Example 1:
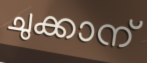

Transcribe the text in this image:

ചുക്കാന്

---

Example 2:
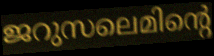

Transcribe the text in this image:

ജറുസലെമിന്റെ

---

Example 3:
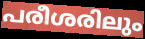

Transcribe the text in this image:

പരീശരിലും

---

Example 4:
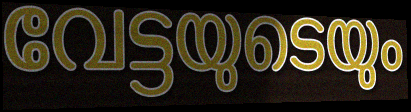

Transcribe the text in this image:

വേട്ടയുടെയും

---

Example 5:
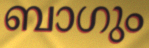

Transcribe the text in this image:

ബാഗും